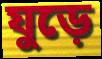
যুড়ে